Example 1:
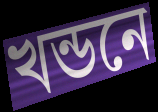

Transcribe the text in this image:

খন্ডনে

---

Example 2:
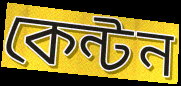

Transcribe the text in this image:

কেন্টন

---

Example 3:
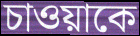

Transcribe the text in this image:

চাওয়াকে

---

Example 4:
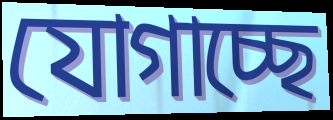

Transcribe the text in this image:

যোগাচ্ছে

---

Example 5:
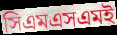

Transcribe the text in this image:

সিএমএসএমই